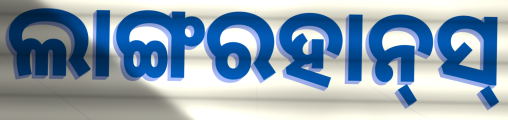
ଲାଙ୍ଗରହାନ୍‌ସ୍